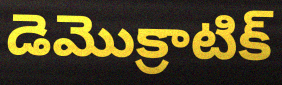
డెమొక్రాటిక్